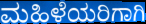
ಮಹಿಳೆಯರಿಗಾಗಿ